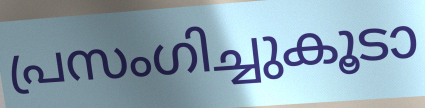
പ്രസംഗിച്ചുകൂടാ